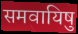
समवायिषु